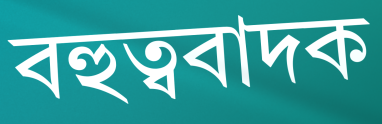
বহুত্ববাদক